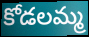
కోడలమ్మ